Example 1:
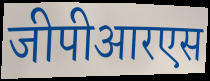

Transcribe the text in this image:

जीपीआरएस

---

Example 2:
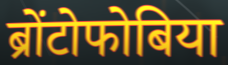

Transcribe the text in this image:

ब्रोंटोफोबिया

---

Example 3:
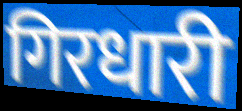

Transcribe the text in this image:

गिरधारी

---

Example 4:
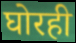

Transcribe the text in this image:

घोरही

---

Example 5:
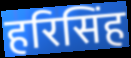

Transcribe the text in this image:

हरिसिंह